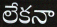
లేకనా